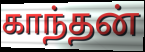
காந்தன்